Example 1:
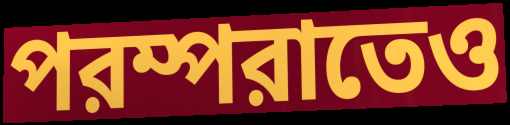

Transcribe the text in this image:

পরম্পরাতেও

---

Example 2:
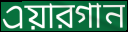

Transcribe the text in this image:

এয়ারগান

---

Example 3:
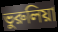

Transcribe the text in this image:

ভুরুলিয়া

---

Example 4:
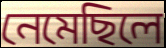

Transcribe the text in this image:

নেমেছিলে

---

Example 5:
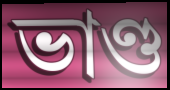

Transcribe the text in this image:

ভাণ্ড